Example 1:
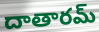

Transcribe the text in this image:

దాతారమ్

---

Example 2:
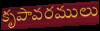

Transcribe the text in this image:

కృపావరములు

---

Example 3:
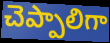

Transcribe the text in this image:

చెప్పాలిగా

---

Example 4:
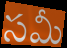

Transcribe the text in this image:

సమీ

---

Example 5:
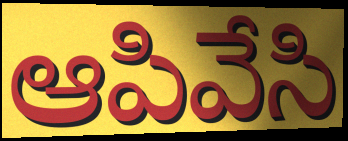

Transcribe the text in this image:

ఆపివేసి